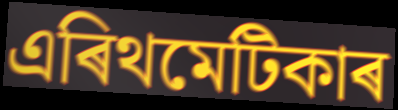
এৰিথমেটিকাৰ